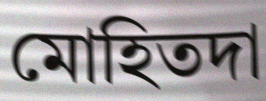
মোহিতদা